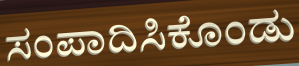
ಸಂಪಾದಿಸಿಕೊಂಡು